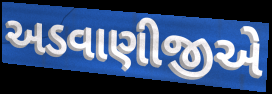
અડવાણીજીએ